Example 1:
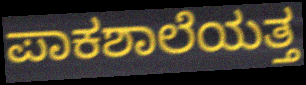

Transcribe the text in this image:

ಪಾಕಶಾಲೆಯತ್ತ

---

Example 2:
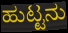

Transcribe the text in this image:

ಹುಟ್ಟನು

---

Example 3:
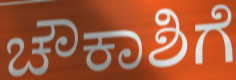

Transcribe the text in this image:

ಚೌಕಾಶಿಗೆ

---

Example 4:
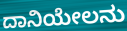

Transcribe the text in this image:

ದಾನಿಯೇಲನು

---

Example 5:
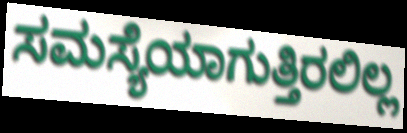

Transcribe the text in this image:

ಸಮಸ್ಯೆಯಾಗುತ್ತಿರಲಿಲ್ಲ